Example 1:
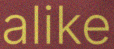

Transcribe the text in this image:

alike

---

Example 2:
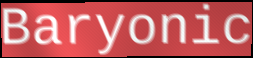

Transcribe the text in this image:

Baryonic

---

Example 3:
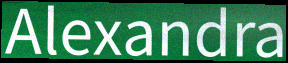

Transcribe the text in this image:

Alexandra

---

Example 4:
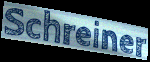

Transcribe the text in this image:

Schreiner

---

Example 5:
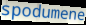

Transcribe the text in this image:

spodumene